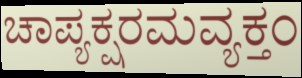
ಚಾಪ್ಯಕ್ಷರಮವ್ಯಕ್ತಂ